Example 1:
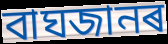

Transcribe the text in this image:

বাঘজানৰ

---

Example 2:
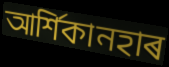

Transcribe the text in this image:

আৰ্শিকানহাৰ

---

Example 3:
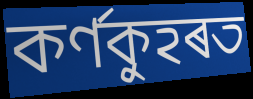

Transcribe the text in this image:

কৰ্ণকুহৰত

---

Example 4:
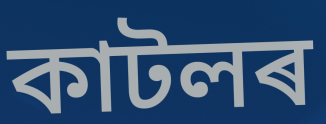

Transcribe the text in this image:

কাটলৰ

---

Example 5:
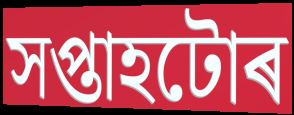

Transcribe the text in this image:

সপ্তাহটোৰ